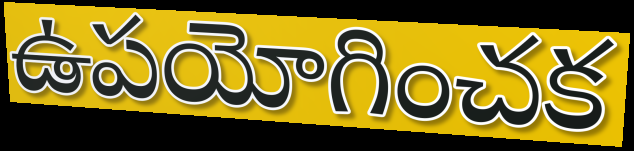
ఉపయోగించక